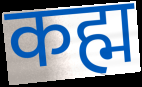
कह्म